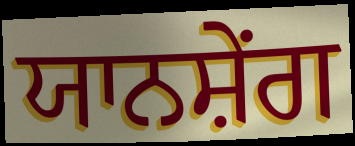
ਯਾਨਸ਼ੇਂਗ